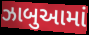
ઝાબુઆમાં